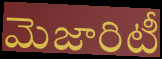
మెజారిటీ